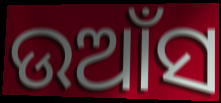
ଉଆଁସ